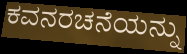
ಕವನರಚನೆಯನ್ನು